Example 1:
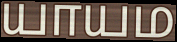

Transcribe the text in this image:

யாயம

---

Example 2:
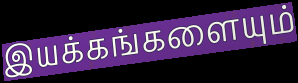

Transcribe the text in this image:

இயக்கங்களையும்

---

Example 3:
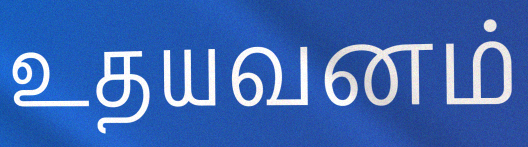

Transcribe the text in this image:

உதயவனம்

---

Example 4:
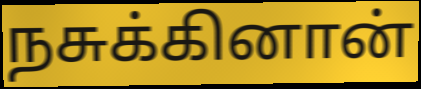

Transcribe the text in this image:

நசுக்கினான்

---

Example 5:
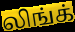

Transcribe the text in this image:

லிங்க்